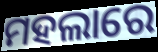
ମହଲାରେ